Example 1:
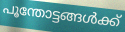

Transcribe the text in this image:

പൂന്തോട്ടങ്ങൾക്ക്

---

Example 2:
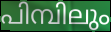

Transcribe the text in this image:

പിമ്പിലും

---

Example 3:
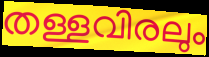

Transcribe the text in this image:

തള്ളവിരലും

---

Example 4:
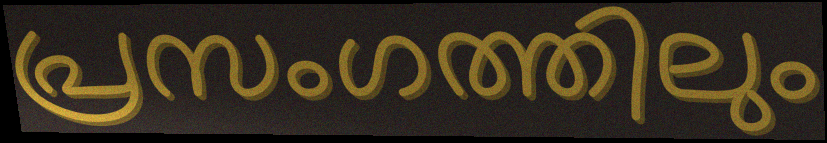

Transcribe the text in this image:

പ്രസംഗത്തിലും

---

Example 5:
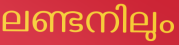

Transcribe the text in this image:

ലണ്ടനിലും